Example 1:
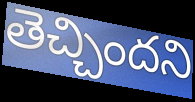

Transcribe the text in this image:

తెచ్చిందని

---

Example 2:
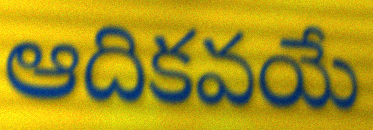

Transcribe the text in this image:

ఆదికవయే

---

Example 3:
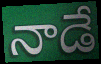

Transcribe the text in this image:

నాడే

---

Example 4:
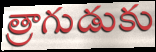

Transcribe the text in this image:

త్రాగుడుకు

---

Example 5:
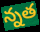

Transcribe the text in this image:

న్నత